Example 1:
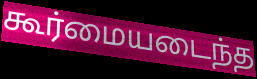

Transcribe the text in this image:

கூர்மையடைந்த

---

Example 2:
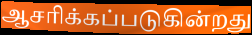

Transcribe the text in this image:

ஆசரிக்கப்படுகின்றது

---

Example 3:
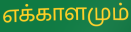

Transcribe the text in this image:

எக்காளமும்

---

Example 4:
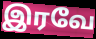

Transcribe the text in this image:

இரவே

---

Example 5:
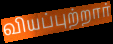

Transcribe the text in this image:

வியப்புற்றார்